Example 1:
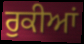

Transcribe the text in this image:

ਰੁਕੀਆਂ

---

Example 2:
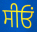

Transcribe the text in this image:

ਸੀਓਂ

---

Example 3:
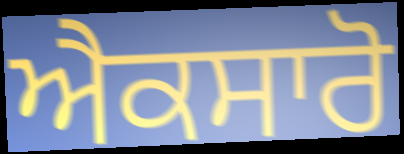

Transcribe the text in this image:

ਐਕਸਾਰੋ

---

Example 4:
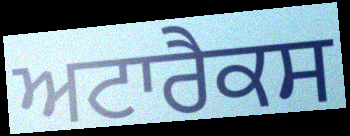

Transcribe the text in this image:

ਅਟਾਰੈਕਸ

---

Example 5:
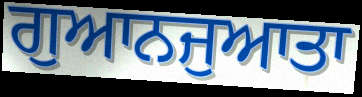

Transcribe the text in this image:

ਗੁਆਨਜੁਆਤਾ